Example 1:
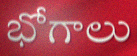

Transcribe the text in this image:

భోగాలు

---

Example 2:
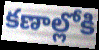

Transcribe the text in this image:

కణాల్లోకి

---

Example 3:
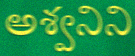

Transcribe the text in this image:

అశ్వనిని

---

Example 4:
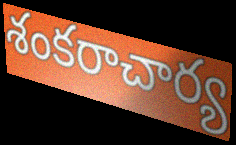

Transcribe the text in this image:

శంకరాచార్య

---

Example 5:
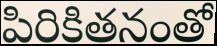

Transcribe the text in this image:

పిరికితనంతో